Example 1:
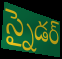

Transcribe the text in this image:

స్నైడర్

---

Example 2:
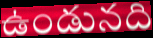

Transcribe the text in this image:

ఉండునది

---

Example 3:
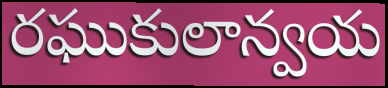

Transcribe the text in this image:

రఘుకులాన్వయ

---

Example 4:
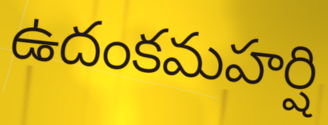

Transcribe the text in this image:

ఉదంకమహర్షి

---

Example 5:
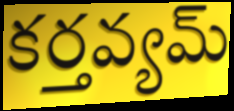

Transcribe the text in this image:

కర్తవ్యమ్